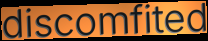
discomfited